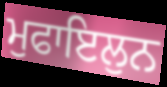
ਮੁਫਾਇਲੁਨ